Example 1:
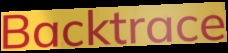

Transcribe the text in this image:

Backtrace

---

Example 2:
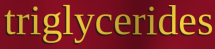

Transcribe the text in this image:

triglycerides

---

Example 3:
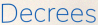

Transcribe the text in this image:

Decrees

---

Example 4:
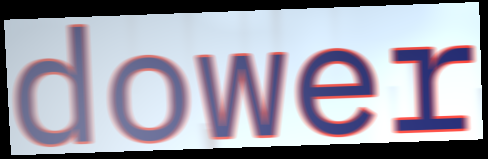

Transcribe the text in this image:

dower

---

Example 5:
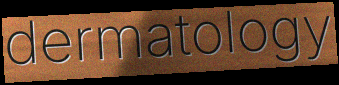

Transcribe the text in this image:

dermatology